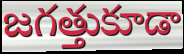
జగత్తుకూడా